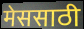
मेससाठी